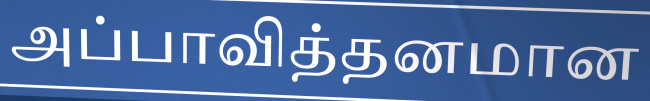
அப்பாவித்தனமான